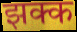
झक्क